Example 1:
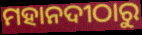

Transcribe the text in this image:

ମହାନଦୀଠାରୁ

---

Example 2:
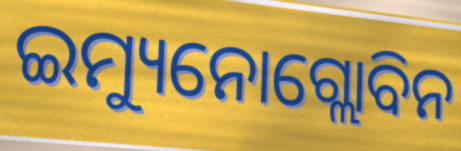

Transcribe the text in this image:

ଇମ୍ୟୁନୋଗ୍ଲୋବିନ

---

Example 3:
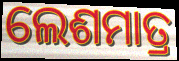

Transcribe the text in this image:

ଲେଶମାତ୍ର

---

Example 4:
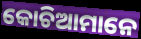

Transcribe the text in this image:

କୋଚିଆମାନେ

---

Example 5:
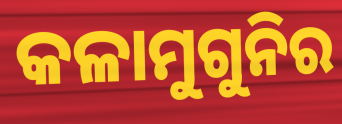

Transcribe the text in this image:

କଳାମୁଗୁନିର